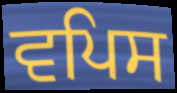
ਵਪਿਸ